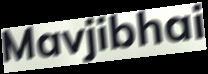
Mavjibhai